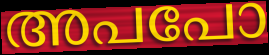
അപപോ